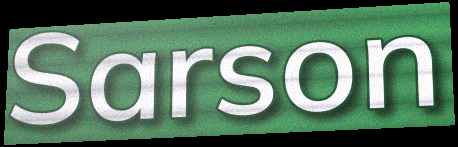
Sarson